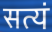
सत्यं